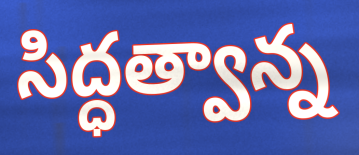
సిద్ధత్వాన్న